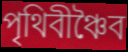
পৃথিবীঞ্চৈব